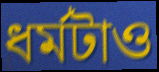
ধর্মটাও